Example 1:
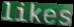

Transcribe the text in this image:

likes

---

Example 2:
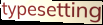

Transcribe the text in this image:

typesetting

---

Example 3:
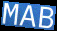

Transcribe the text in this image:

MAB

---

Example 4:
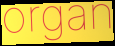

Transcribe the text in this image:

organ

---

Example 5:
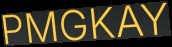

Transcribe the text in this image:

PMGKAY